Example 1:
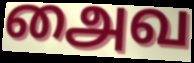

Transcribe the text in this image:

அைவ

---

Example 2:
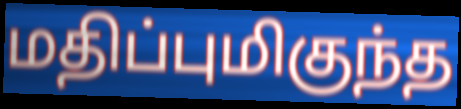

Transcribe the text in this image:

மதிப்புமிகுந்த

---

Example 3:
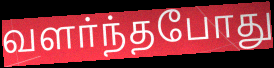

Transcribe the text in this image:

வளர்ந்தபோது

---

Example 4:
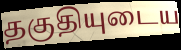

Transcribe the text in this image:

தகுதியுடைய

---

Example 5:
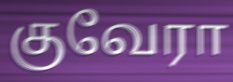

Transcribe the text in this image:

குவேரா